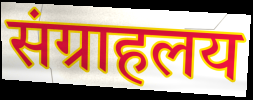
संग्राहलय